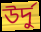
উৰ্দু